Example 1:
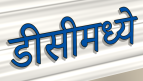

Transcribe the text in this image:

डीसीमध्ये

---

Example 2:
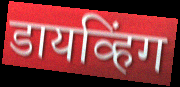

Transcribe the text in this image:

डायव्हिंग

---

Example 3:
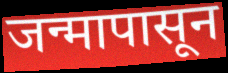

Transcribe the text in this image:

जन्मापासून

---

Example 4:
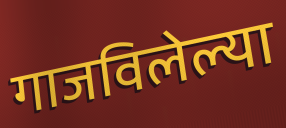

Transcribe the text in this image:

गाजविलेल्या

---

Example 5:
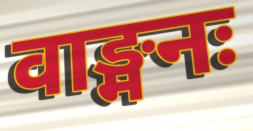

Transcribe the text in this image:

वाङ्मनः